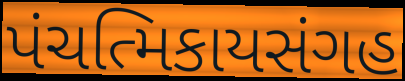
પંચત્મિકાયસંગહ